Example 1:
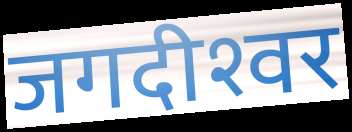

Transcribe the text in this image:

जगदीश्वर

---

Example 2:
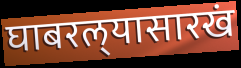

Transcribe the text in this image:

घाबरल्यासारखं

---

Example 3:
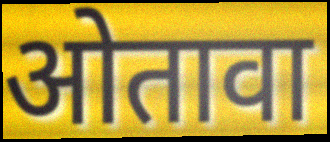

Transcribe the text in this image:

ओतावा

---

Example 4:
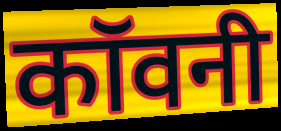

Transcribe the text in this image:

कॉवनी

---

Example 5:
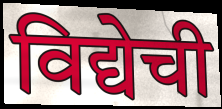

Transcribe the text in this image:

विद्येची